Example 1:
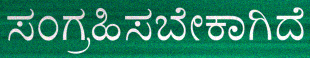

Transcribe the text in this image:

ಸಂಗ್ರಹಿಸಬೇಕಾಗಿದೆ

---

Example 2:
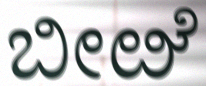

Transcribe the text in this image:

ಬೀೞೆ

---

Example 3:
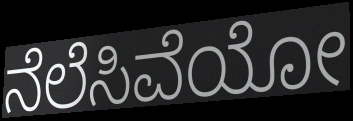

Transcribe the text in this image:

ನೆಲೆಸಿವೆಯೋ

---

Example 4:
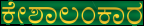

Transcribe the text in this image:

ಕೇಶಾಲಂಕಾರ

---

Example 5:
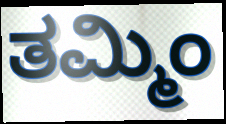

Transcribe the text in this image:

ತಮ್ಮಿಂ